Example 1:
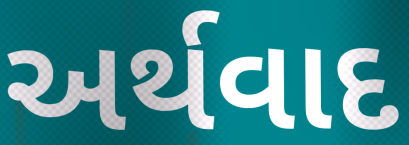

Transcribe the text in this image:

અર્થવાદ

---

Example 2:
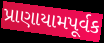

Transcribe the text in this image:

પ્રાણાયામપૂર્વક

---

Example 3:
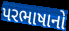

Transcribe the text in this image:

પરભાષાનો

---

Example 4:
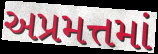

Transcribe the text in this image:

અપ્રમત્તમાં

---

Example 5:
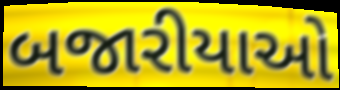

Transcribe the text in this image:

બજારીયાઓ